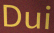
Dui